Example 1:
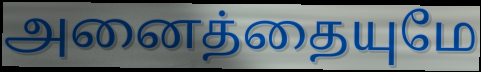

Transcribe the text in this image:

அனைத்தையுமே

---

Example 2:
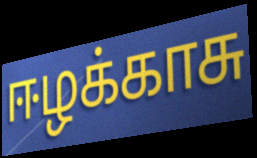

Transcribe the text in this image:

ஈழக்காசு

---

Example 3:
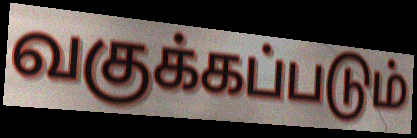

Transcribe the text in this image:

வகுக்கப்படும்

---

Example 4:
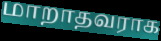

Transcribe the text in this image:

மாறாதவராக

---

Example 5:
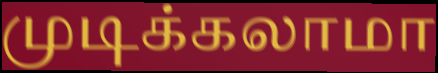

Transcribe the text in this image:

முடிக்கலாமா